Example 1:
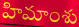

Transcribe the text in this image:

హిమాంశు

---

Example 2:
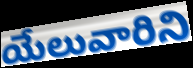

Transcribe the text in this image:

యేలువారిని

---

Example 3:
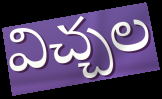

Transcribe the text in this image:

విచ్చల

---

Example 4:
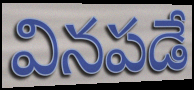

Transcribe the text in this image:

వినపడే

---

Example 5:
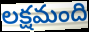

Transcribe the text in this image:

లక్షమంది